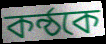
কন্ঠকে